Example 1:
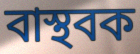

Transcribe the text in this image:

বাস্থবক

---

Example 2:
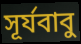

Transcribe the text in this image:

সূর্যবাবু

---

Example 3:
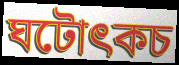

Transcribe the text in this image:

ঘটোৎকচ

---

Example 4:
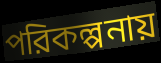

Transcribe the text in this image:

পরিকল্পনায়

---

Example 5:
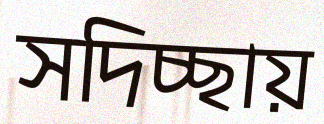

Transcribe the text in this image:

সদিচ্ছায়